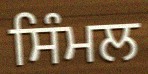
ਸਿੰਮਲ